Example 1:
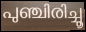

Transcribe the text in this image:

പുഞ്ചിരിച്ചൂ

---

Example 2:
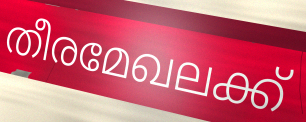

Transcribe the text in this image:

തീരമേഖലക്ക്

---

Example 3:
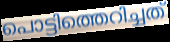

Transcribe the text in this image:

പൊട്ടിത്തെറിച്ചത്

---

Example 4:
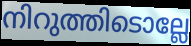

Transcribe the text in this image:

നിറുത്തിടൊല്ലേ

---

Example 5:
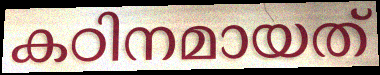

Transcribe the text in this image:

കഠിനമായത്